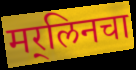
मर्लिनचा